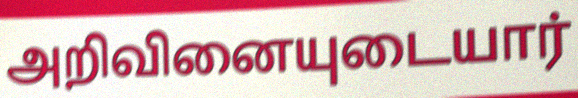
அறிவினையுடையார்